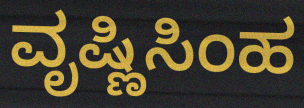
ವೃಷ್ಣಿಸಿಂಹ